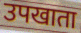
उपखाता